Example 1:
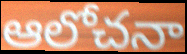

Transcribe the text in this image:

ఆలోచనా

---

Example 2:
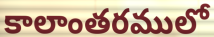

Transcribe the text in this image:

కాలాంతరములో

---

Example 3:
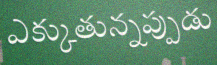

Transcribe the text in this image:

ఎక్కుతున్నప్పుడు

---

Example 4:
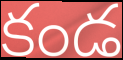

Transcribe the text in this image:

కండ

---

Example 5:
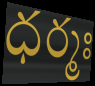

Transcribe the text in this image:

ధర్మః